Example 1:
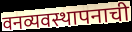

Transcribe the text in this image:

वनव्यवस्थापनाची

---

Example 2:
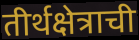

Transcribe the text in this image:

तीर्थक्षेत्राची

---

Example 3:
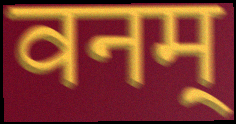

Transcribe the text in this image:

वनम्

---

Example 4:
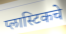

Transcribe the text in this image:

प्लास्टिकचे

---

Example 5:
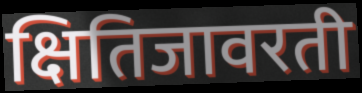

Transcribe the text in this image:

क्षितिजावरती